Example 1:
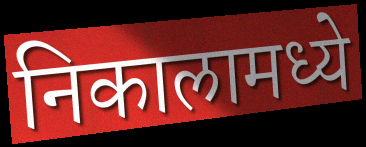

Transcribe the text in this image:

निकालामध्ये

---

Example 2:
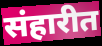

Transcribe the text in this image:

संहारीत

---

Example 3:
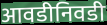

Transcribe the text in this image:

आवडीनिवडी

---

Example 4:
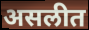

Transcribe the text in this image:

असलीत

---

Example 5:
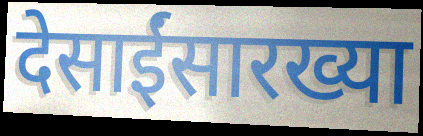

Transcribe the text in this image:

देसाईंसारख्या